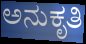
ಅನುಕೃತಿ